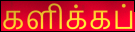
களிக்கப்